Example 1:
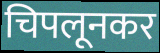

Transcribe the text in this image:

चिपलूनकर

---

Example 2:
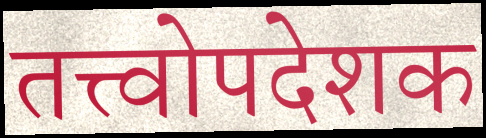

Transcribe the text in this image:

तत्त्वोपदेशक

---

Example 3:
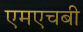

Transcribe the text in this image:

एमएचबी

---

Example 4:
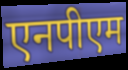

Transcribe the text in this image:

एनपीएम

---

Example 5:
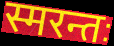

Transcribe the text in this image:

स्मरन्तः